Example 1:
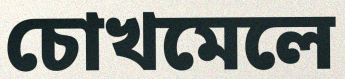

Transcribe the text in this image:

চোখমেলে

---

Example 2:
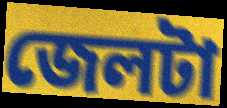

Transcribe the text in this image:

জেলটা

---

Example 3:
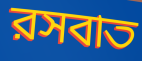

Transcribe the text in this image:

রসবাত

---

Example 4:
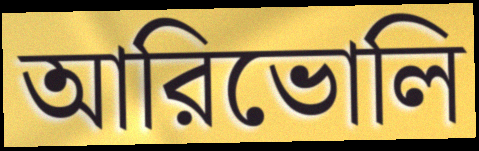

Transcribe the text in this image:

আরিভোলি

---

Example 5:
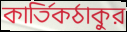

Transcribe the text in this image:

কার্তিকঠাকুর